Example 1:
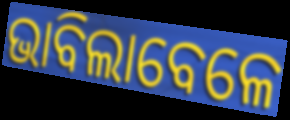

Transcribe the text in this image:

ଭାବିଲାବେଳେ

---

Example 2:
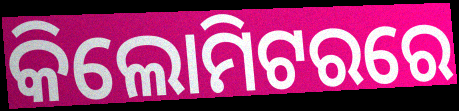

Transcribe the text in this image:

କିଲୋମିଟରରେ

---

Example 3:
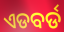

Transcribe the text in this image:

ଏଡବର୍ଡ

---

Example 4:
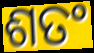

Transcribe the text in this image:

ଶତଂ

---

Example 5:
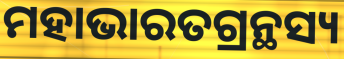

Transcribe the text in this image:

ମହାଭାରତଗ୍ରନ୍ଥସ୍ୟ